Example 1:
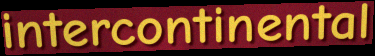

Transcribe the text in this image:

intercontinental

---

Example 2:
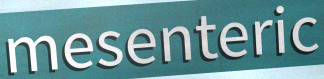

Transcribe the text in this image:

mesenteric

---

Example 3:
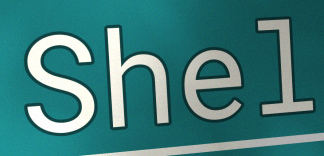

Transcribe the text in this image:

Shel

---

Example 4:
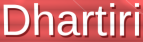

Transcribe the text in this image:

Dhartiri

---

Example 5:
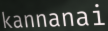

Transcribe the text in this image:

kannanai